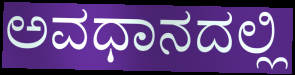
ಅವಧಾನದಲ್ಲಿ